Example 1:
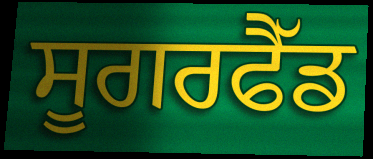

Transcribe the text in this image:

ਸੂਗਰਫੈੱਡ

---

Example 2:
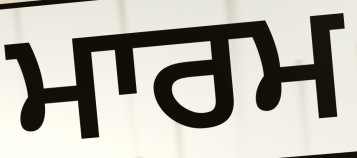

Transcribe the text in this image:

ਮਾਰਮ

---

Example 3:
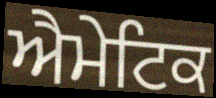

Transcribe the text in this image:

ਐਮੇਟਿਕ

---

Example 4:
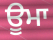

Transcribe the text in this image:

ਊਮਾ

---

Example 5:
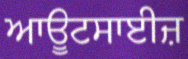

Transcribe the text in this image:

ਆਊਟਸਾਈਜ਼